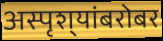
अस्पृश्यांबरोबर